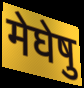
मेघेषु